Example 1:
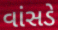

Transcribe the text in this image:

વાંસડે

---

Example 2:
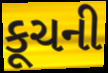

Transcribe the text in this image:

કૂચની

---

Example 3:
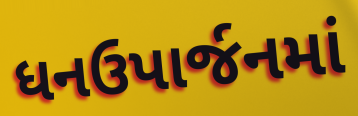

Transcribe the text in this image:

ધનઉપાર્જનમાં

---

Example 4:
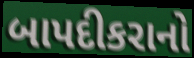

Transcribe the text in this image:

બાપદીકરાનો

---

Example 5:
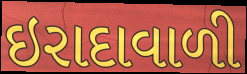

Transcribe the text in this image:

ઇરાદાવાળી